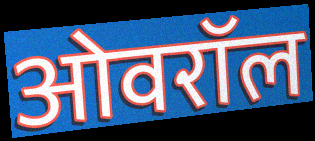
ओवरॉल